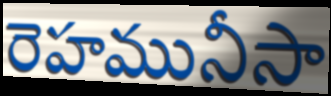
రెహమునీసా